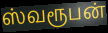
ஸ்வரூபன்